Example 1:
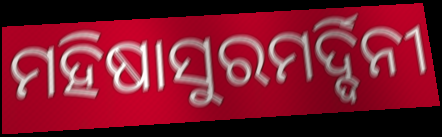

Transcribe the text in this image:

ମହିଷାସୁରମର୍ଦ୍ଦିନୀ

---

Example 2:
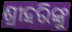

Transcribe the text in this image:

ଶ୍ରୀହରିଙ୍କୁ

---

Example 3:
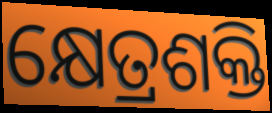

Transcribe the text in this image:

କ୍ଷେତ୍ରଶକ୍ତି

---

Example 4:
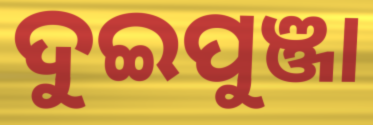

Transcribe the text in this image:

ଦୁଇପୁଞ୍ଜା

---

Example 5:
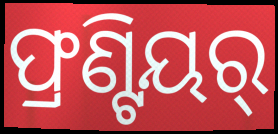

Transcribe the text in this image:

ଫ୍ରଣ୍ଟିୟର୍